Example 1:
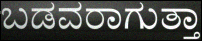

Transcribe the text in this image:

ಬಡವರಾಗುತ್ತಾ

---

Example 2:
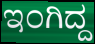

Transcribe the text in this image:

ಇಂಗಿದ್ದ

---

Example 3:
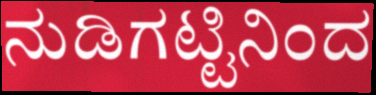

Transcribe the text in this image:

ನುಡಿಗಟ್ಟಿನಿಂದ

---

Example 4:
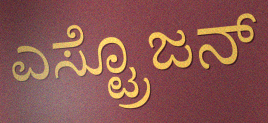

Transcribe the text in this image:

ಎಸ್ಟ್ರೊಜನ್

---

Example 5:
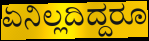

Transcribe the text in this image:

ಏನಿಲ್ಲದಿದ್ದರೂ